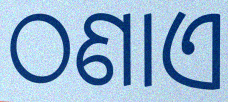
ଠଣାଏ